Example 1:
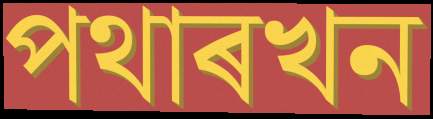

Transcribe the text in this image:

পথাৰখন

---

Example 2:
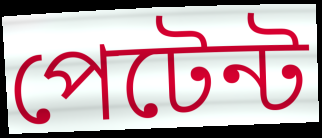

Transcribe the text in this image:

পেটেন্ট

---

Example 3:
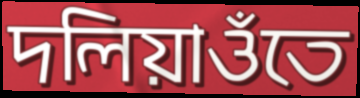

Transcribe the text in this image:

দলিয়াওঁতে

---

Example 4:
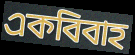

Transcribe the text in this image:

একবিবাহ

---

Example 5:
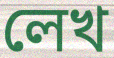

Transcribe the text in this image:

লেখ